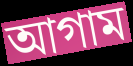
আগাম